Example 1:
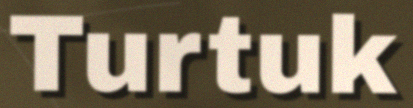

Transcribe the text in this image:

Turtuk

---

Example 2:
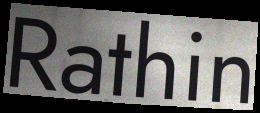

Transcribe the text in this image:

Rathin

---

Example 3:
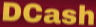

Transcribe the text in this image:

DCash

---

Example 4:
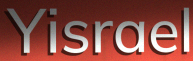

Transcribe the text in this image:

Yisrael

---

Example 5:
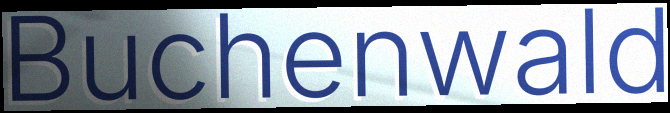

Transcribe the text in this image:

Buchenwald